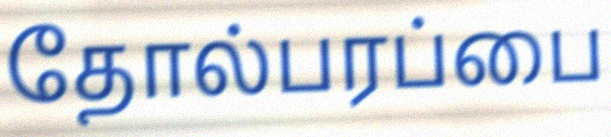
தோல்பரப்பை